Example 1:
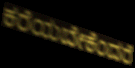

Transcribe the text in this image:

ಕರೆಯಬೇಕೆಂದರೆ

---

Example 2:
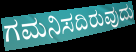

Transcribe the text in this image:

ಗಮನಿಸದಿರುವುದು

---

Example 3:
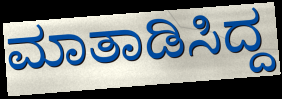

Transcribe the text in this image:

ಮಾತಾಡಿಸಿದ್ದ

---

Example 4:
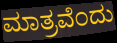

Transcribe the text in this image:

ಮಾತ್ರವೆಂದು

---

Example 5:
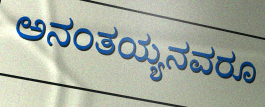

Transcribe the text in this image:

ಅನಂತಯ್ಯನವರೂ